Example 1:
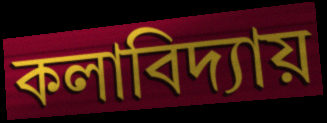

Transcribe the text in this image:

কলাবিদ্যায়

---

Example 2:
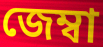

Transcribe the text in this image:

জেম্বা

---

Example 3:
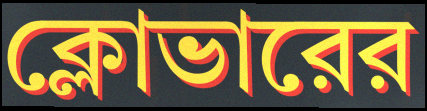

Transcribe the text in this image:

ক্লোভারের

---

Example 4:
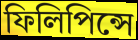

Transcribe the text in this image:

ফিলিপিন্সে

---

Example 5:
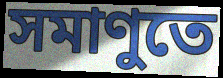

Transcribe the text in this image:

সমাণুতে